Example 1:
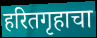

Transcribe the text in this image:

हरितगृहाचा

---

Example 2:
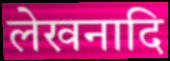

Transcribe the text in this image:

लेखनादि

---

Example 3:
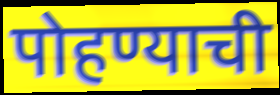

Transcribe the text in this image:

पोहण्याची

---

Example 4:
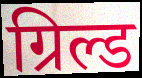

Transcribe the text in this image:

ग्रिल्ड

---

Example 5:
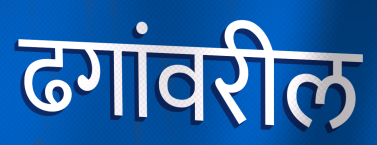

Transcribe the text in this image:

ढगांवरील